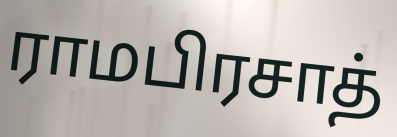
ராமபிரசாத்